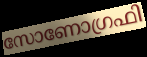
സോണോഗ്രഫി